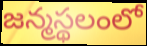
జన్మస్థలంలో